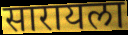
सारायला